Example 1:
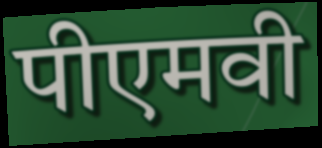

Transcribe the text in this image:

पीएमवी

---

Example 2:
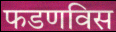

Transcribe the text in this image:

फडणविस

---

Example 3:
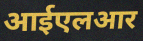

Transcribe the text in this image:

आईएलआर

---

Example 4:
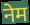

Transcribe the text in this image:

नेम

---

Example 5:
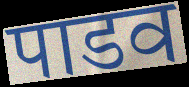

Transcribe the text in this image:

पाडव